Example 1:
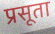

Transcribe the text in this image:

प्रसूता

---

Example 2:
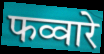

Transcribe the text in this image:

फव्वारे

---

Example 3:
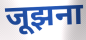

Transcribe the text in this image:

जूझना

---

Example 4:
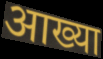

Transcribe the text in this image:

आख्या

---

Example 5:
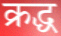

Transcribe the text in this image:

क्रद्ध